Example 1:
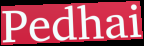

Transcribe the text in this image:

Pedhai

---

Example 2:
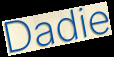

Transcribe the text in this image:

Dadie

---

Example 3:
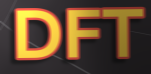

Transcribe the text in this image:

DFT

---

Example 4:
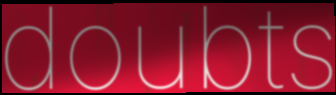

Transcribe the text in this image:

doubts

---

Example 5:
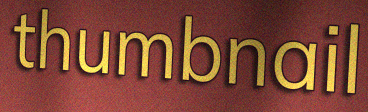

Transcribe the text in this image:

thumbnail